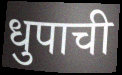
धुपाची